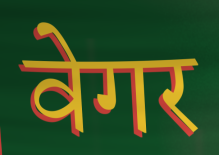
वेगर